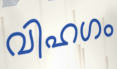
വിഹഗം